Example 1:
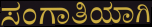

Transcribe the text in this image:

ಸಂಗಾತಿಯಾಗಿ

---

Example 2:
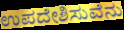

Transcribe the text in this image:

ಉಪದೇಶಿಸುವೆನು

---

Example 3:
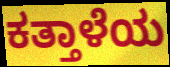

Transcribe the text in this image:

ಕತ್ತಾಳೆಯ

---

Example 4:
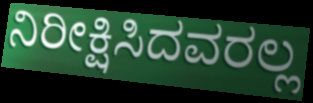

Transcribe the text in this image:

ನಿರೀಕ್ಷಿಸಿದವರಲ್ಲ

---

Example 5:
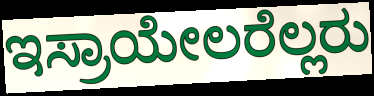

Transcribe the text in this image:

ಇಸ್ರಾಯೇಲರೆಲ್ಲರು